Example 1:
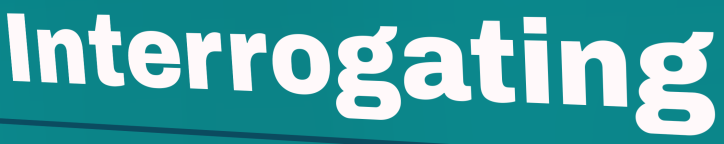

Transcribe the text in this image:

Interrogating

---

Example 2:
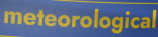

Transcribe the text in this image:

meteorological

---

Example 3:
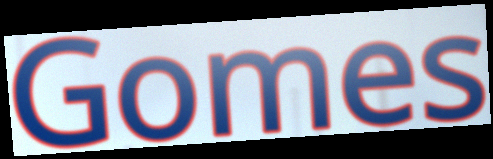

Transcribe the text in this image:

Gomes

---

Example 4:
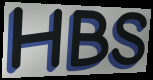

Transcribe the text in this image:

HBS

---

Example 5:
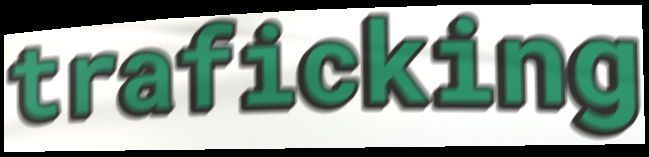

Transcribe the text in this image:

traficking